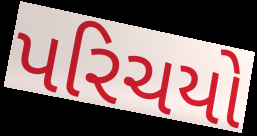
પરિચયો